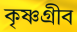
কৃষ্ণগ্রীব